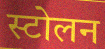
स्टोलन